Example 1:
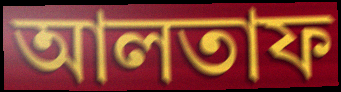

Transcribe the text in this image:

আলতাফ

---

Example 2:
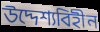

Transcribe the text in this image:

উদ্দেশ্যবিহীন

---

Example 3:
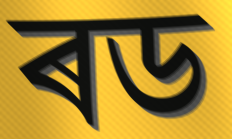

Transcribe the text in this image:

ৰড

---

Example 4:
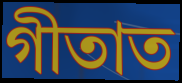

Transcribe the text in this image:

গীতাত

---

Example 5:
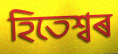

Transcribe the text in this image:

হিতেশ্বৰ